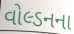
વોલ્ડનના